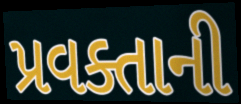
પ્રવક્તાની